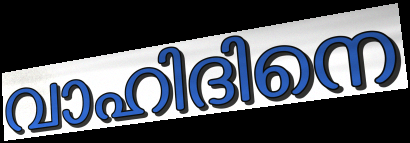
വാഹിദിനെ